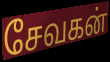
சேவகன்